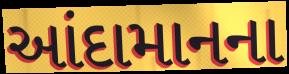
આંદામાનના